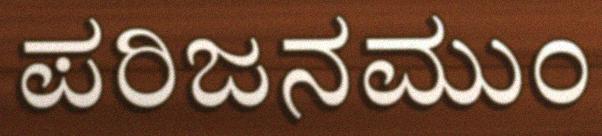
ಪರಿಜನಮುಂ